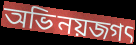
অভিনয়জগৎ